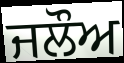
ਜਲੌਅ